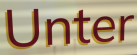
Unter